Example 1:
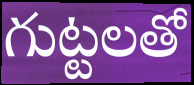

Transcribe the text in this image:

గుట్టలతో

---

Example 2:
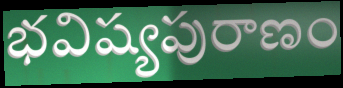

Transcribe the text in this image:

భవిష్యపురాణం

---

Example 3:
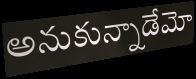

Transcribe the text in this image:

అనుకున్నాడేమో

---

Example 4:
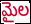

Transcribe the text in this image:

మైల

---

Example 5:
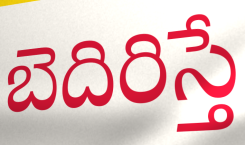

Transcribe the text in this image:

బెదిరిస్తే